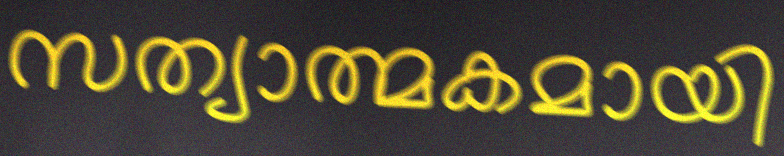
സത്യാത്മകമായി